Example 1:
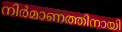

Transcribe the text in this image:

നിർമാണത്തിനായി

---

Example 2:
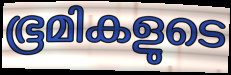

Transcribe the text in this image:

ഭൂമികളുടെ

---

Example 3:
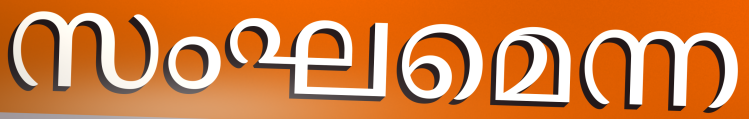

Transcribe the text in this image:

സംഘമെന്ന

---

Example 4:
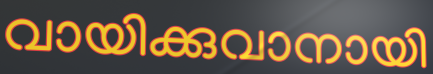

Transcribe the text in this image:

വായിക്കുവാനായി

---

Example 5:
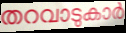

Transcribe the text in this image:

തറവാടുകാർ